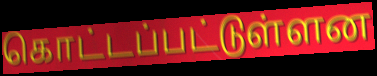
கொட்டப்பட்டுள்ளன